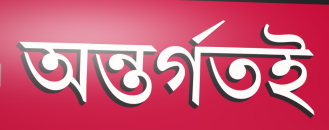
অন্তর্গতই